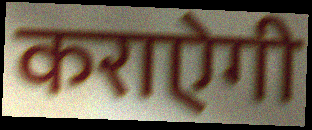
कराऐगी